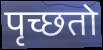
पृच्छतो